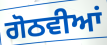
ਗੋਠਵੀਆਂ